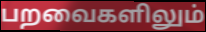
பறவைகளிலும்